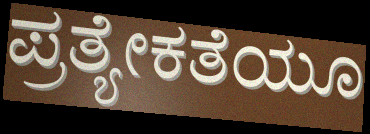
ಪ್ರತ್ಯೇಕತೆಯೂ